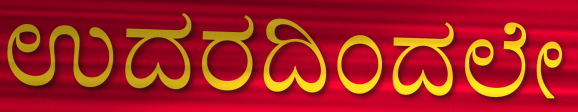
ಉದರದಿಂದಲೇ